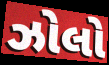
ઝોલો